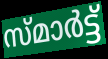
സ്മാർട്ട്